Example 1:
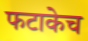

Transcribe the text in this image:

फटाकेच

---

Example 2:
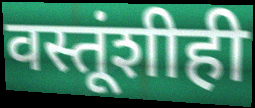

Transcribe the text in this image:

वस्तूंशीही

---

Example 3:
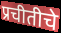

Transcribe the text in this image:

प्रचीतीचे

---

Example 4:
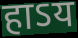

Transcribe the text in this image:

हाऽय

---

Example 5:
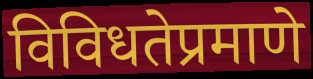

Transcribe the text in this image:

विविधतेप्रमाणे